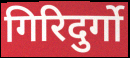
गिरिदुर्गो